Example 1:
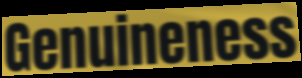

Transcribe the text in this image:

Genuineness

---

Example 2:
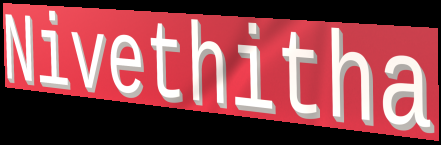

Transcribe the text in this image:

Nivethitha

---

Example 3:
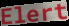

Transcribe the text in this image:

Elert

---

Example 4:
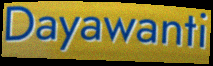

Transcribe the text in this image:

Dayawanti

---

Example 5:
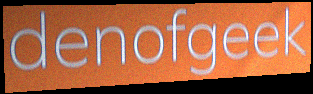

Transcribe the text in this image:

denofgeek